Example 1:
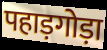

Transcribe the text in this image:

पहाड़गोड़ा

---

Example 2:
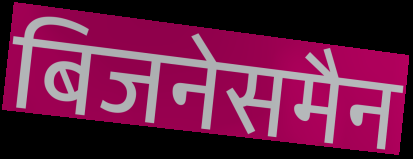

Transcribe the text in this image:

बिजनेसमैन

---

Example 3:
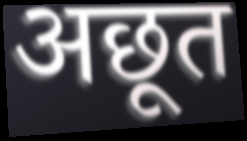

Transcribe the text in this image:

अछूत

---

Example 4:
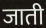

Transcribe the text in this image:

जाती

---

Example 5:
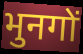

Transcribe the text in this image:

भुनगों